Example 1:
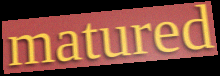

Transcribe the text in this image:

matured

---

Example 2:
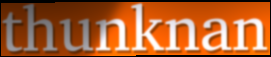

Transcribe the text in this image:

thunknan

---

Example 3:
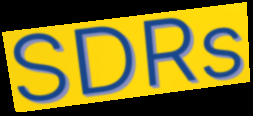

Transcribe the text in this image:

SDRs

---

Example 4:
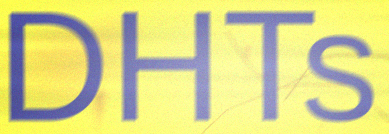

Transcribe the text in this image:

DHTs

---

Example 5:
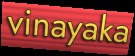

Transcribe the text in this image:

vinayaka